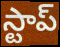
స్టాప్